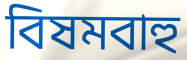
বিষমবাহু